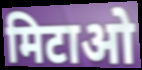
मिटाओ